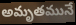
అమృతమునే